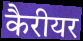
कैरीयर